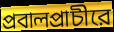
প্রবালপ্রাচীরে